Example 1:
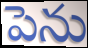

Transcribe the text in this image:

పెను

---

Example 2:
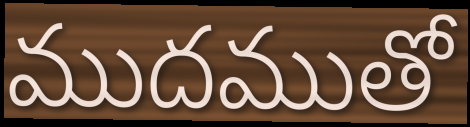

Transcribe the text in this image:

ముదముతో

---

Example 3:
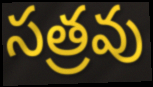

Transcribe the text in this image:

సత్రవు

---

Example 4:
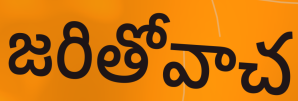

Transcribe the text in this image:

జరితోవాచ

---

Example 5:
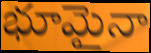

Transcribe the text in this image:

భూమైనా